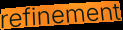
refinement